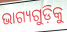
ଭାଗ୍ୟଗୁଡ଼ିକୁ